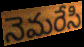
నెమరేసి